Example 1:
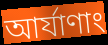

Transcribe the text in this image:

আর্যাণাং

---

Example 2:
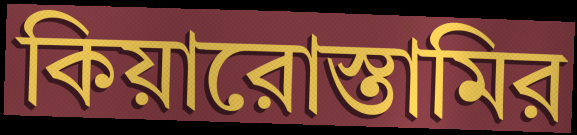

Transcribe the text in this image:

কিয়ারোস্তামির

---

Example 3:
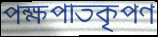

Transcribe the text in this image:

পক্ষপাতকৃপণ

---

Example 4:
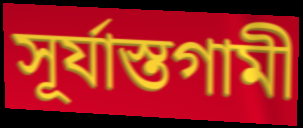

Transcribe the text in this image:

সূর্যাস্তগামী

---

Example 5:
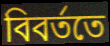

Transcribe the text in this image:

বিবর্ততে